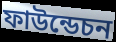
ফাউন্ডেচন